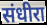
संधीरा